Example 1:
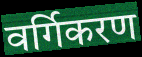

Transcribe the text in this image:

वर्गिकरण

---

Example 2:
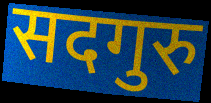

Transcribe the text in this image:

सदगुरु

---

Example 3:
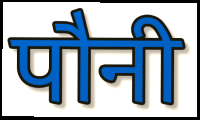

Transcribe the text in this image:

पौनी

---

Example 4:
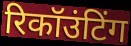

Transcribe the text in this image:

रिकॉउंटिंग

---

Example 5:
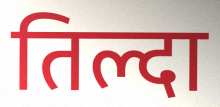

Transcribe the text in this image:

तिल्दा